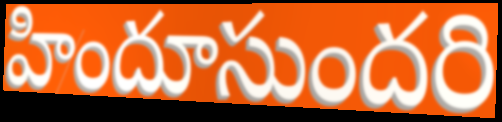
హిందూసుందరి